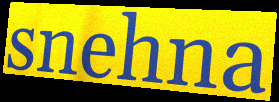
snehna